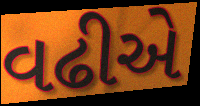
વઢીએ